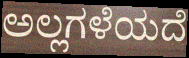
ಅಲ್ಲಗಳೆಯದೆ